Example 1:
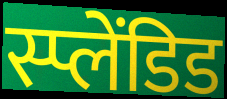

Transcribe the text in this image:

स्प्लेंडिड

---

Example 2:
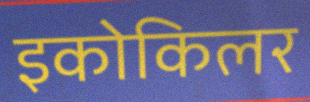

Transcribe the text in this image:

इकोकिलर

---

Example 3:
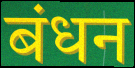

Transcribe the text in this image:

बंधन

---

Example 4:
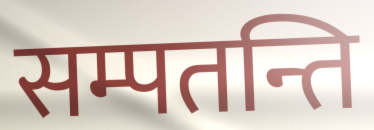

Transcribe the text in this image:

सम्पतन्ति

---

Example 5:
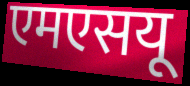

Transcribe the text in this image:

एमएसयू